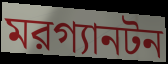
মরগ্যানটন